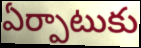
ఏర్పాటుకు